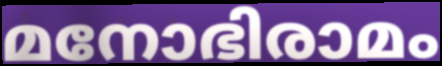
മനോഭിരാമം